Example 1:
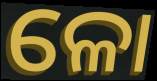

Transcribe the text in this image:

ଳୋ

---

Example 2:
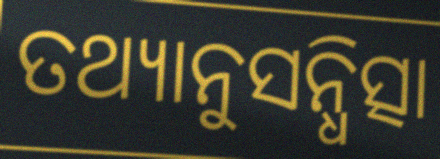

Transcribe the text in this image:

ତଥ୍ୟାନୁସନ୍ଧିତ୍ସା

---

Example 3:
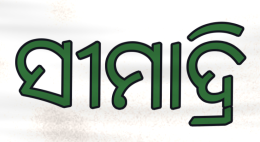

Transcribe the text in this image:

ସୀମାଦ୍ରି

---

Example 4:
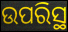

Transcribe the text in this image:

ଉପରିସ୍ଥ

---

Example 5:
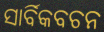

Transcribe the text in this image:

ସାର୍ବିକବଚନ